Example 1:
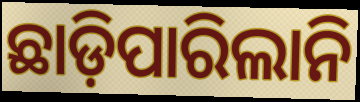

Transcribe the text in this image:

ଛାଡ଼ିପାରିଲାନି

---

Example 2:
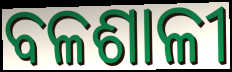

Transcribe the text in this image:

ବଳଶାଳୀ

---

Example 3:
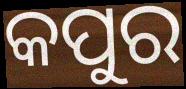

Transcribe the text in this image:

କପୁର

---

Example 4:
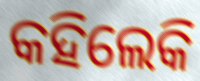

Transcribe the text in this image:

କହିଲେକି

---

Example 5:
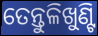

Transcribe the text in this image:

ତେନ୍ତୁଳିଖୁଣ୍ଟି